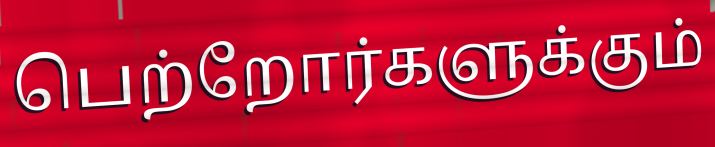
பெற்றோர்களுக்கும்